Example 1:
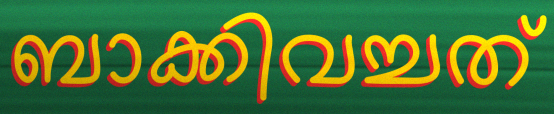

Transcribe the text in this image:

ബാക്കിവച്ചത്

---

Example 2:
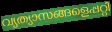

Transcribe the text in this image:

വ്യത്യാസങ്ങളെപ്പറ്റി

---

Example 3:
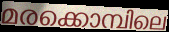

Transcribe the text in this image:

മരക്കൊമ്പിലെ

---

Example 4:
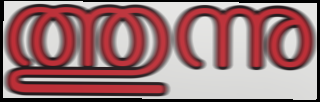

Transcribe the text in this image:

ത്തുന്നു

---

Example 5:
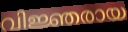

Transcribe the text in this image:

വിജ്ഞരായ